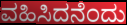
ವಹಿಸಿದನೆಂದು